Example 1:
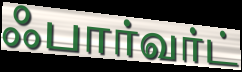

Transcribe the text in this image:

ஃபார்வர்ட்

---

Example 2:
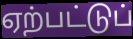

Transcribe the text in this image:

ஏற்பட்டுப்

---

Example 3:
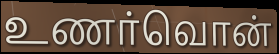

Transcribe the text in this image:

உணர்வொன்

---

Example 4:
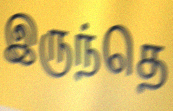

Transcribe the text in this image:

இருந்தெ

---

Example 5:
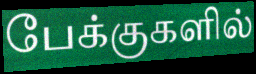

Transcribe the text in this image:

பேக்குகளில்